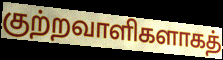
குற்றவாளிகளாகத்